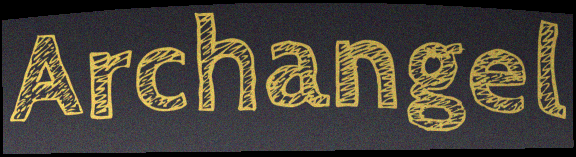
Archangel